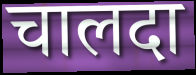
चालदा